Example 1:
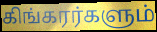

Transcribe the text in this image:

கிங்கரர்களும்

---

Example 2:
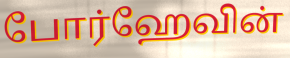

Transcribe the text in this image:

போர்ஹேவின்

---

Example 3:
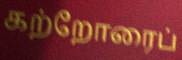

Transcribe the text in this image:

கற்றோரைப்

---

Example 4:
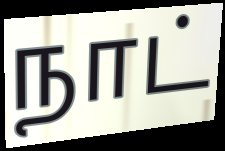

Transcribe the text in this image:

நாட்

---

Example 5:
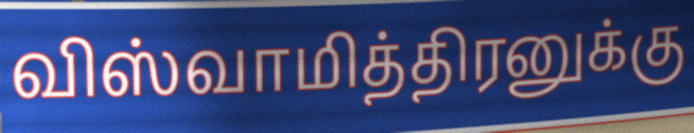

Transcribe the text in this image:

விஸ்வாமித்திரனுக்கு